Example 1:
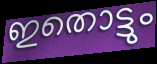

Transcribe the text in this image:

ഇതൊട്ടും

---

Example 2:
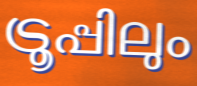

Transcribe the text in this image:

ട്രൂപ്പിലും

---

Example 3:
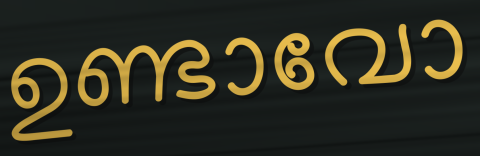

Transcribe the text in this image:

ഉണ്ടാവോ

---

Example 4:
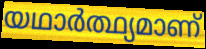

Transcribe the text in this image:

യഥാർത്ഥ്യമാണ്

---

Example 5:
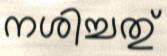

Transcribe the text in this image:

നശിച്ചതു്